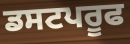
ਡਸਟਪਰੂਫ